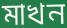
মাখন